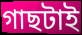
গাছটাই